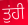
ਤੁਂਹੀ